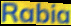
Rabia